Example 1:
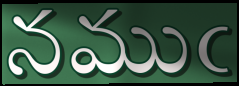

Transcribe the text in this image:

నముఁ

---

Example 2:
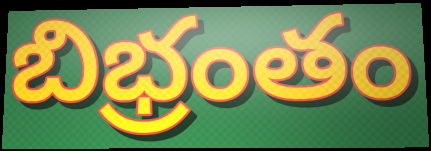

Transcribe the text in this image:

బిభ్రంతం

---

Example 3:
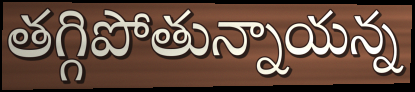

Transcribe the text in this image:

తగ్గిపోతున్నాయన్న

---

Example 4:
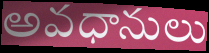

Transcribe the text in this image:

అవధానులు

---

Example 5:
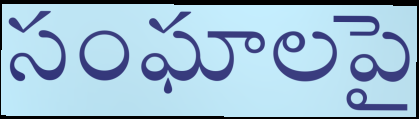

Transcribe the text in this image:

సంఘాలపై